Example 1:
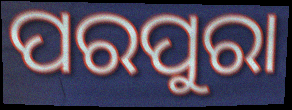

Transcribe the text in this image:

ପରପୁରା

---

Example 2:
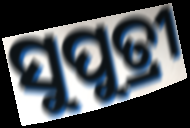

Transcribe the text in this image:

ସୁପୁତ୍ରୀ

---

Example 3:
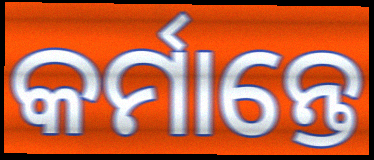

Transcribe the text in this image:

କର୍ମାନ୍ତେ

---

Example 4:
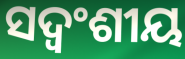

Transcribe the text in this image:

ସଦ୍ବଂଶୀୟ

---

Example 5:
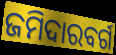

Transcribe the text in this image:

ଜମିଦାରବର୍ଗ